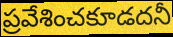
ప్రవేశించకూడదనీ